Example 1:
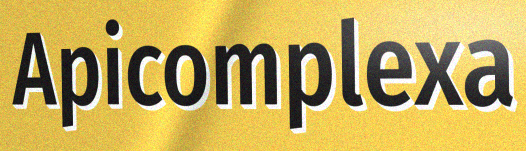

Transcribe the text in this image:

Apicomplexa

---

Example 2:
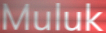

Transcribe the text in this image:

Muluk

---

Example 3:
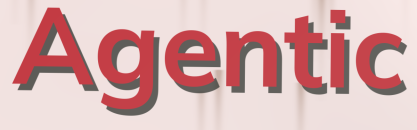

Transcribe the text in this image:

Agentic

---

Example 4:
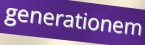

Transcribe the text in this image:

generationem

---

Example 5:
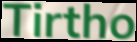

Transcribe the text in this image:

Tirtho